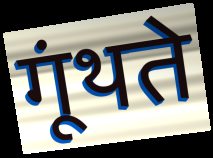
गूंथते